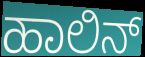
ಹಾಲಿನ್